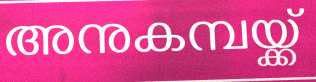
അനുകമ്പയ്ക്ക്